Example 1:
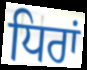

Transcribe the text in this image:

ਧਿਰਾਂ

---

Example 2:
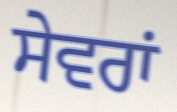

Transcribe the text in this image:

ਸੇਵਰਾਂ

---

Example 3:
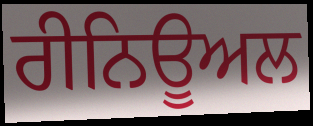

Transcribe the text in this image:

ਰੀਨਿਊਅਲ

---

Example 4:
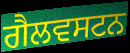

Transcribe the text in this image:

ਗੈਲਵਸਟਨ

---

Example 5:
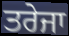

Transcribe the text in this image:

ਤਰੇਜਾ